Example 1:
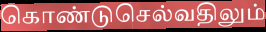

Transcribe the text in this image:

கொண்டுசெல்வதிலும்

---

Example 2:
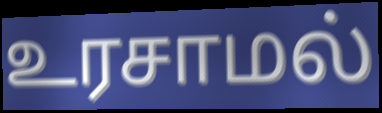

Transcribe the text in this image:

உரசாமல்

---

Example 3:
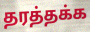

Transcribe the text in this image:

தரத்தக்க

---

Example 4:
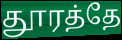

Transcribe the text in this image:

தூரத்தே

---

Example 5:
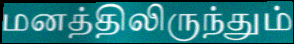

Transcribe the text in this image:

மனத்திலிருந்தும்